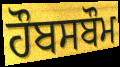
ਹੌਬਸਬੌਮ